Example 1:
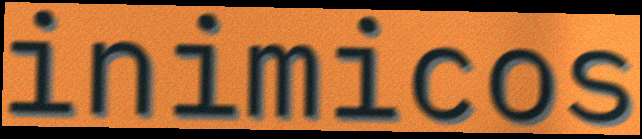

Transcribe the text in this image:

inimicos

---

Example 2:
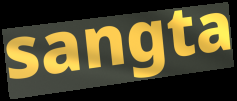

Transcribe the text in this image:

sangta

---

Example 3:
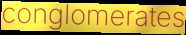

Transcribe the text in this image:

conglomerates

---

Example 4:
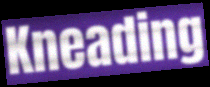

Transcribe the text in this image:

Kneading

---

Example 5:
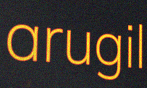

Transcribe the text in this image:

arugil